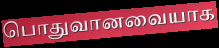
பொதுவானவையாக